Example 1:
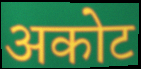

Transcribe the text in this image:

अकोट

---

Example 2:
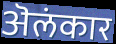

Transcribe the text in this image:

ऄलंकार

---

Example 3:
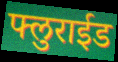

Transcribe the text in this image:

फ्लुराईड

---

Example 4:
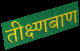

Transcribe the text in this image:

तीक्ष्णबाण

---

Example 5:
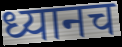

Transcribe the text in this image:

ध्यानच